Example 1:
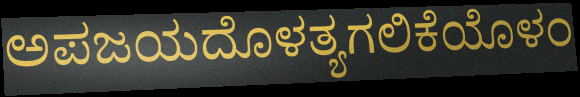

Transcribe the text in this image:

ಅಪಜಯದೊಳತ್ಯಗಲಿಕೆಯೊಳಂ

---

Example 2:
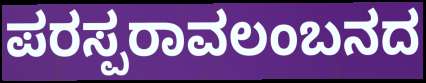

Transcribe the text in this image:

ಪರಸ್ಪರಾವಲಂಬನದ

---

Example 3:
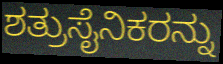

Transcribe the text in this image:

ಶತ್ರುಸೈನಿಕರನ್ನು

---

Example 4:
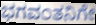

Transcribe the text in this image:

ಭಗವಂತನಿಗೇ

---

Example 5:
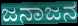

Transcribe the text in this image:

ಜನಾಜನ